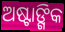
ଅଷ୍ଟାଙ୍ଗିକ